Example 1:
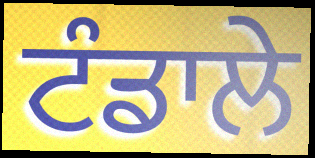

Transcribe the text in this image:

ਟੰਡਾਲੇ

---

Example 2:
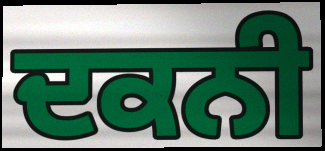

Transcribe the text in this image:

ਦਕਨੀ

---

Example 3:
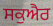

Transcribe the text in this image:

ਸਕੁਐਰ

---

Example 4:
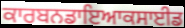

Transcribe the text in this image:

ਕਾਰਬਨਡਾਇਆਕਸਾਈਡ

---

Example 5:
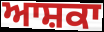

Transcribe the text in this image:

ਆਸ਼ਕਾ